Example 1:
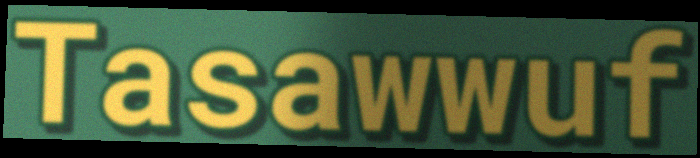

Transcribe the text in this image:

Tasawwuf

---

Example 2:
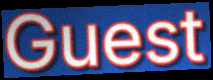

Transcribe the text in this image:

Guest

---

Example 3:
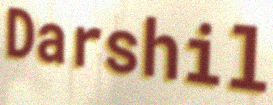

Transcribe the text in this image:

Darshil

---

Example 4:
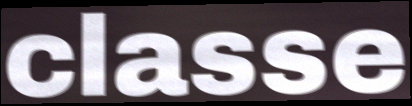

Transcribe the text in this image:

classe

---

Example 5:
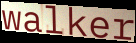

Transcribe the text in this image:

walker